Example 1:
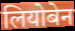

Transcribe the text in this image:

लियोबेन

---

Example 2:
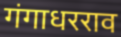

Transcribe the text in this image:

गंगाधरराव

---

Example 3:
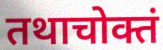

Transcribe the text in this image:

तथाचोक्तं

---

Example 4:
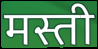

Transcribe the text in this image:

मस्‍ती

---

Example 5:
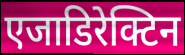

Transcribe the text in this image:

एजाडिरेक्टिन